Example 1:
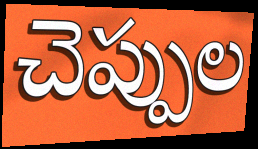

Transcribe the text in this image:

చెప్పుల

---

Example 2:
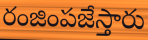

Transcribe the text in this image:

రంజింపజేస్తారు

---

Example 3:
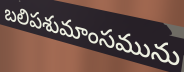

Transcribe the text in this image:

బలిపశుమాంసమును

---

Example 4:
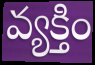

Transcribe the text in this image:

వ్యక్తిం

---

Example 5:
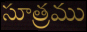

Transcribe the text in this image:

సూత్రము